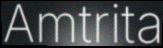
Amtrita